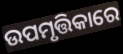
ଉପମୃତ୍ତିକାରେ